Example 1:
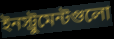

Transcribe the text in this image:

ইনস্ট্রুমেন্টগুলো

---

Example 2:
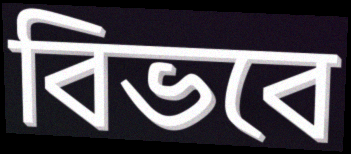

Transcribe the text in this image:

বিভবে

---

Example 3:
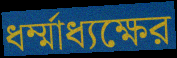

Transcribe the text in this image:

ধর্ম্মাধ্যক্ষের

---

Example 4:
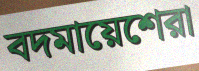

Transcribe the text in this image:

বদমায়েশেরা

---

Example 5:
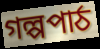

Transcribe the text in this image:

গল্পপাঠ